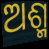
ଅଶ୍ମ